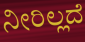
ನೀರಿಲ್ಲದೆ